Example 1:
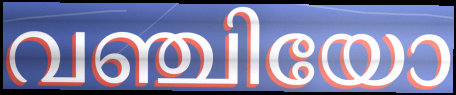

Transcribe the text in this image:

വഞ്ചിയോ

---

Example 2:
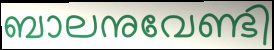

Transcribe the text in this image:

ബാലനുവേണ്ടി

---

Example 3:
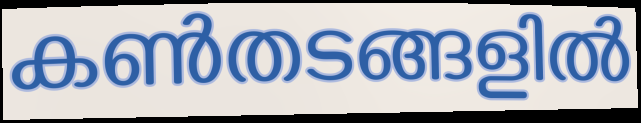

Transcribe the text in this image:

കൺതടങ്ങളിൽ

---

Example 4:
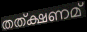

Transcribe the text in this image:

തത്ക്ഷണമ്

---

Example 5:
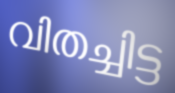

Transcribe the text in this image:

വിതച്ചിട്ട